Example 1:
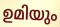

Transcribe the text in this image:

ഉമിയും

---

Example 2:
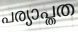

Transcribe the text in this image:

പര്യാപ്തത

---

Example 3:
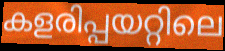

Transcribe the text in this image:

കളരിപ്പയറ്റിലെ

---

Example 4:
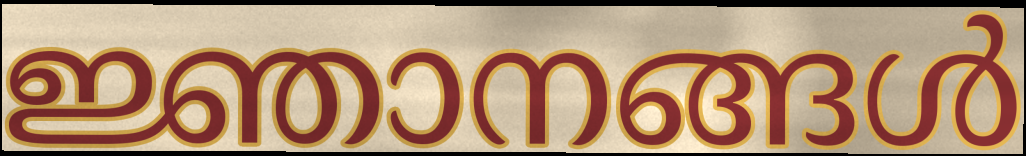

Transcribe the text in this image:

ജ്ഞാനങ്ങൾ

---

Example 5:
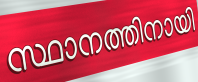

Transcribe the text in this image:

സ്ഥാനത്തിനായി